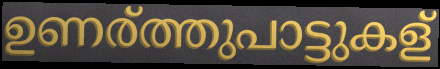
ഉണര്ത്തുപാട്ടുകള്